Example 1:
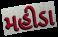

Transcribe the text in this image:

મહીડા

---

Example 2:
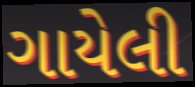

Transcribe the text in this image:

ગાયેલી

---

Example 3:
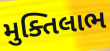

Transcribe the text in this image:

મુક્તિલાભ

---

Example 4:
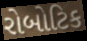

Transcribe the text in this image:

રોબોટિક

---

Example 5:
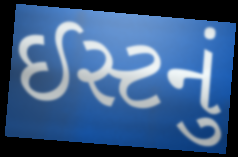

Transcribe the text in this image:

ઈસ્ટનું